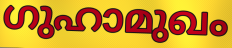
ഗുഹാമുഖം